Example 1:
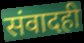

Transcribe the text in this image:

संवादही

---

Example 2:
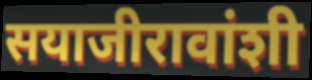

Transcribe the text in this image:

सयाजीरावांशी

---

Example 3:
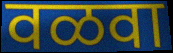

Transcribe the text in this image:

वळवा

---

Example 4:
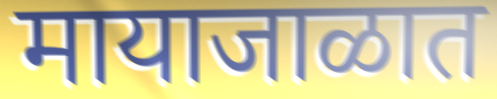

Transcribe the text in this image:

मायाजाळात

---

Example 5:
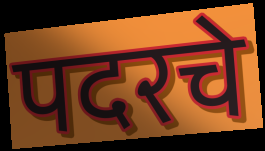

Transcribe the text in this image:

पदरचे